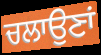
ਚਲਾਉਣਾਂ